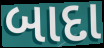
બાદા